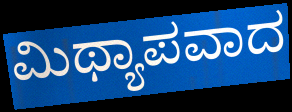
ಮಿಥ್ಯಾಪವಾದ